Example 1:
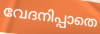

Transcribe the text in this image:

വേദനിപ്പാതെ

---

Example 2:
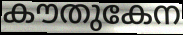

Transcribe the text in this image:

കൗതുകേന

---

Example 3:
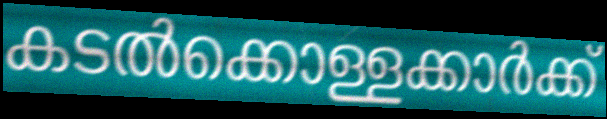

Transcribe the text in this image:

കടൽക്കൊള്ളക്കാർക്ക്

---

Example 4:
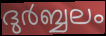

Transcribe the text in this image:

ദുർബ്ബലം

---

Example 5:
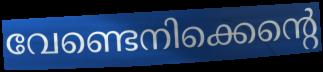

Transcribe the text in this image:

വേണ്ടെനിക്കെന്റെ